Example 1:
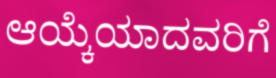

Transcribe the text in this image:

ಆಯ್ಕೆಯಾದವರಿಗೆ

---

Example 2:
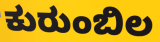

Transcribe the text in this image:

ಕುರುಂಬಿಲ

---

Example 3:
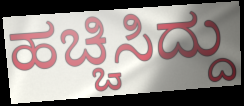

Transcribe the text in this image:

ಹಚ್ಚಿಸಿದ್ದು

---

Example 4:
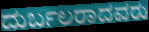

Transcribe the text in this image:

ದುರ್ಬಲರಾದವರು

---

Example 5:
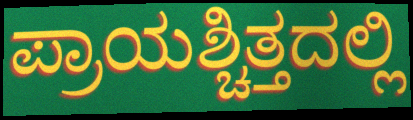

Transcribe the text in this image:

ಪ್ರಾಯಶ್ಚಿತ್ತದಲ್ಲಿ